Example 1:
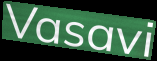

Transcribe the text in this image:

Vasavi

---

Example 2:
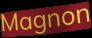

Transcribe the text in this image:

Magnon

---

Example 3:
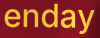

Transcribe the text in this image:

enday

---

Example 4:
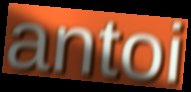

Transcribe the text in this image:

antoi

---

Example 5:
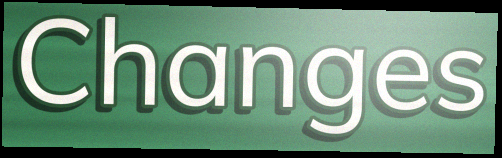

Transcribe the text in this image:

Changes